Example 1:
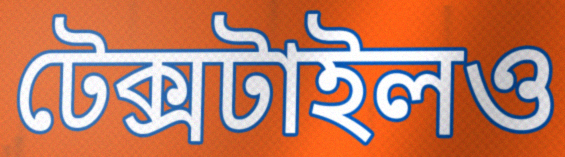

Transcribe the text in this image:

টেক্সটাইলও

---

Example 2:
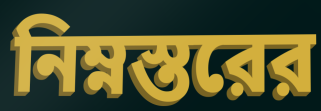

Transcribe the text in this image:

নিম্নস্তরের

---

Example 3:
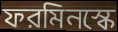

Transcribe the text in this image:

ফরমিনস্কে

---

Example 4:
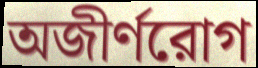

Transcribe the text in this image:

অজীর্ণরোগ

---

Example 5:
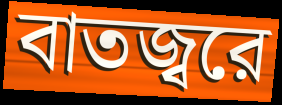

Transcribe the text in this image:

বাতজ্বরে